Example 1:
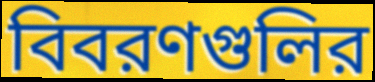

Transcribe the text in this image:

বিবরণগুলির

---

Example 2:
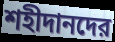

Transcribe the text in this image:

শহীদানদের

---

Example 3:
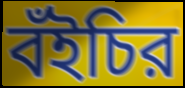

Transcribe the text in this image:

বঁইচির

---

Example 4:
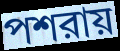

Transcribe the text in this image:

পশরায়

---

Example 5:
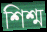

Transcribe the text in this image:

শিশ্ম